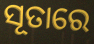
ସୂତାରେ